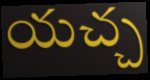
యచ్చ